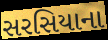
સરસિયાના